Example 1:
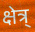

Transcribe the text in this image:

क्षेत्र्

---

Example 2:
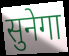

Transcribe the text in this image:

सुनेगा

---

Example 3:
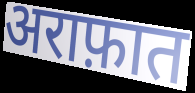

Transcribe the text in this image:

अराफ़ात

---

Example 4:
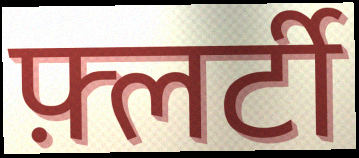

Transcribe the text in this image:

फ़्लर्टी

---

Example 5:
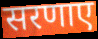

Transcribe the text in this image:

सरणाए